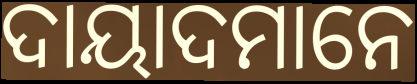
ଦାୟାଦମାନେ